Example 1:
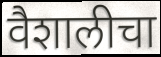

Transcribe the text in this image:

वैशालीचा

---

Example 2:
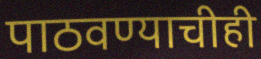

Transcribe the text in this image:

पाठवण्याचीही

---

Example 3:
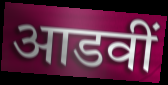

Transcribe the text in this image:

आडवीं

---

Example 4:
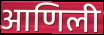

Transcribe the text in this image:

आणिली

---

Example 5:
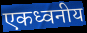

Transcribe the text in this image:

एकध्वनीय